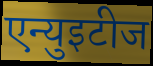
एन्युइटीज